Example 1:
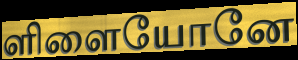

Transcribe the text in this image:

ளிளையோனே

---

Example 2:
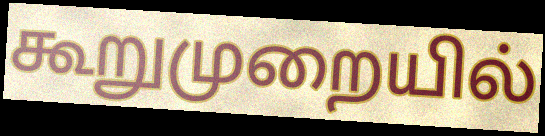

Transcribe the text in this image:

கூறுமுறையில்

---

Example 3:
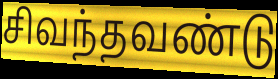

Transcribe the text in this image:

சிவந்தவண்டு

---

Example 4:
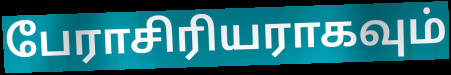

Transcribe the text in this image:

பேராசிரியராகவும்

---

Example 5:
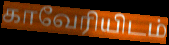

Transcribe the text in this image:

காவேரியிடம்